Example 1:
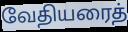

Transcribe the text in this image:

வேதியரைத்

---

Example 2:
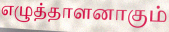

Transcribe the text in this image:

எழுத்தாளனாகும்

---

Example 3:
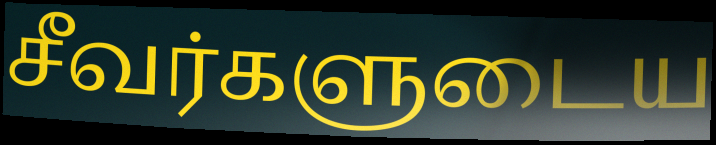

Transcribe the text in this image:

சீவர்களுடைய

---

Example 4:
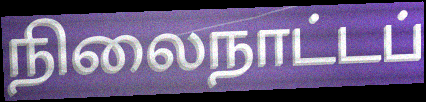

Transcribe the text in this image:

நிலைநாட்டப்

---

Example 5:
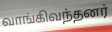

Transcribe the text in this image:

வாங்கிவந்தனர்